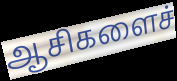
ஆசிகளைச்